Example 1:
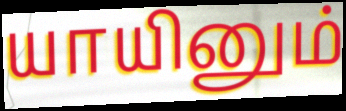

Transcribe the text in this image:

யாயினும்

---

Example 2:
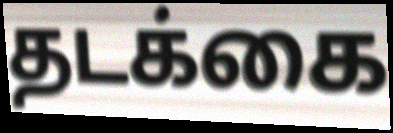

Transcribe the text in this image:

தடக்கை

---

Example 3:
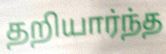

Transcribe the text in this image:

தறியார்ந்த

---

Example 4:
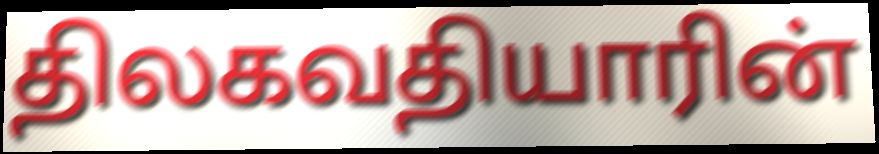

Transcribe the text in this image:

திலகவதியாரின்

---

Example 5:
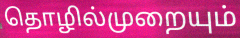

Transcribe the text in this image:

தொழில்முறையும்